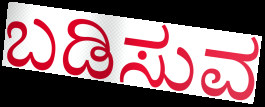
ಬಡಿಸುವ